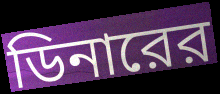
ডিনারের